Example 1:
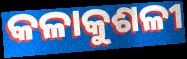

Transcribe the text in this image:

କଳାକୁଶଳୀ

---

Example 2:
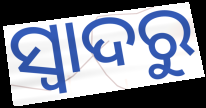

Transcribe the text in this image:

ସ୍ବାଦରୁ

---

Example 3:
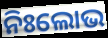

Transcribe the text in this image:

ନିଃଲୋଭ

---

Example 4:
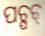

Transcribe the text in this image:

ପଚ୍ପଚ୍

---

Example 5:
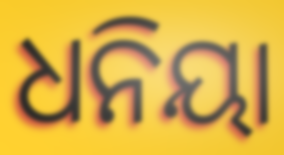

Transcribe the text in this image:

ଧନିୟା